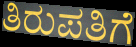
ತಿರುಪತಿಗೆ